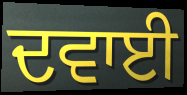
ਦਵਾਈ